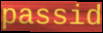
passid